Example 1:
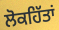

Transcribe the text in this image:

ਲੋਕਹਿੱਤਾਂ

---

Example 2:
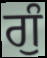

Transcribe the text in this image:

ਗੁੰ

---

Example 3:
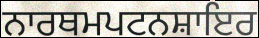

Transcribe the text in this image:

ਨਾਰਥਮਪਟਨਸ਼ਾਇਰ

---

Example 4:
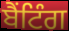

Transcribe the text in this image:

ਬੈਂਟਿੰਗ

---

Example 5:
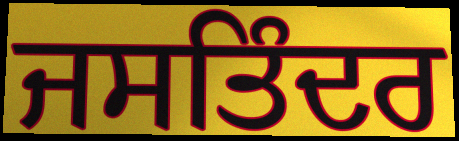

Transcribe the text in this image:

ਜਸਤਿੰਦਰ